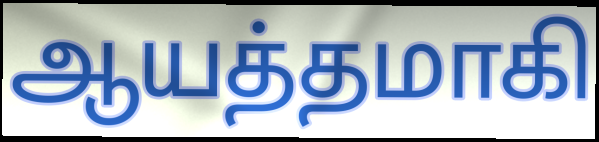
ஆயத்தமாகி